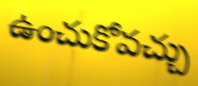
ఉంచుకోవచ్చు